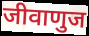
जीवाणुज